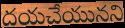
దయచేయునని